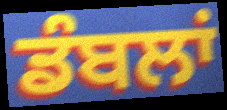
ਡੰਬਲਾਂ